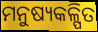
ମନୁଷ୍ୟକଳ୍ପିତ